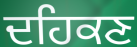
ਦਹਿਕਣ